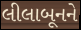
લીલાબૂનને